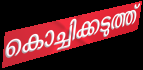
കൊച്ചിക്കടുത്ത്